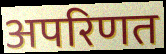
अपरिणत